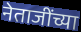
नेताजींच्या